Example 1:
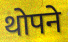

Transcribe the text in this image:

थोपने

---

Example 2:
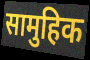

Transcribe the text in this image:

सामुहिक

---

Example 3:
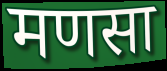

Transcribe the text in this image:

मणसा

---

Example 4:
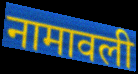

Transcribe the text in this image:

नामावली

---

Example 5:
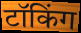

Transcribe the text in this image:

टॉकिंग